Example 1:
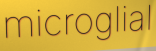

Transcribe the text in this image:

microglial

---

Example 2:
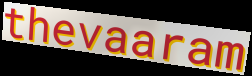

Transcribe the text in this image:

thevaaram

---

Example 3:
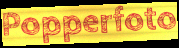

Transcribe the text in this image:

Popperfoto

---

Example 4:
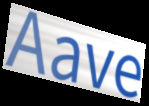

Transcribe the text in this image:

Aave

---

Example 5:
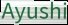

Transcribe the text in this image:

Ayushi